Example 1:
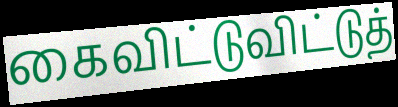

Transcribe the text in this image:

கைவிட்டுவிட்டுத்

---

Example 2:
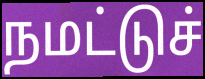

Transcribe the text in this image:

நமட்டுச்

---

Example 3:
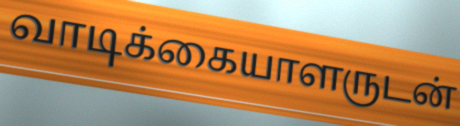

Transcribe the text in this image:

வாடிக்கையாளருடன்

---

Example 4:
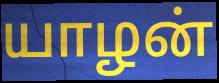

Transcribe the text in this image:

யாழன்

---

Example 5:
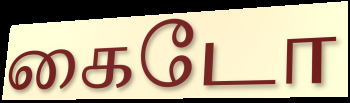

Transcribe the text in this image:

கைடோ